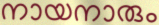
നായനാരും